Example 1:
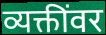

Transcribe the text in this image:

व्यक्तींवर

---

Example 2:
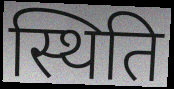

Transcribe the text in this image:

स्थिति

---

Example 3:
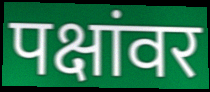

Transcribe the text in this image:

पक्षांवर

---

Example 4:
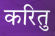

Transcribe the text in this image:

करितु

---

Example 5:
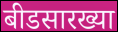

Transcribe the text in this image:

बीडसारख्या